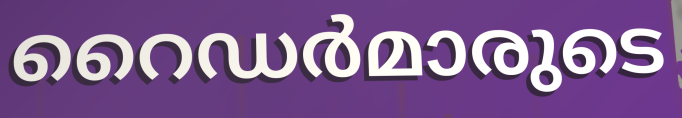
റൈഡർമാരുടെ